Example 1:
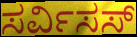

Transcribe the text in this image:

ಸರ್ವಿಸಸ್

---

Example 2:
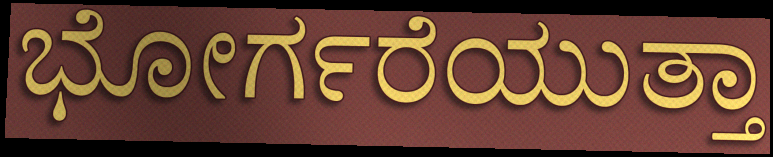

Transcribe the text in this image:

ಭೋರ್ಗರೆಯುತ್ತಾ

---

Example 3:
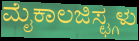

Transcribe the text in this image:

ಮೈಕಾಲಜಿಸ್ಟ್ಗಳು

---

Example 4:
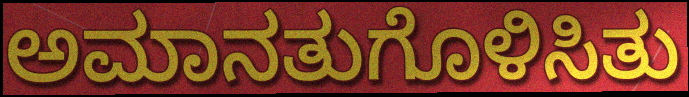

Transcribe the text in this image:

ಅಮಾನತುಗೊಳಿಸಿತು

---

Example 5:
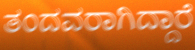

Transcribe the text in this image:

ತಂದವರಾಗಿದ್ದಾರೆ